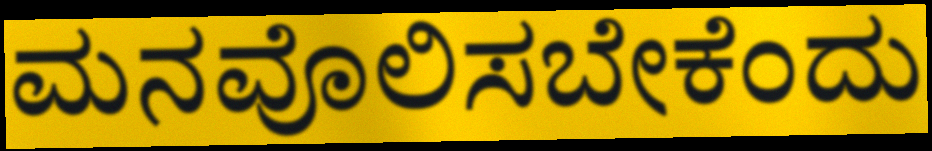
ಮನವೊಲಿಸಬೇಕೆಂದು